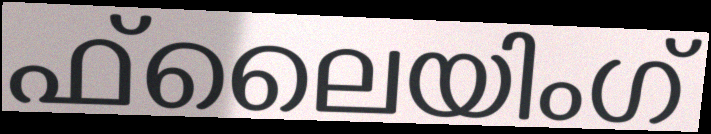
ഫ്‌ലൈയിംഗ്